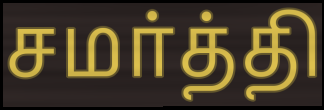
சமர்த்தி